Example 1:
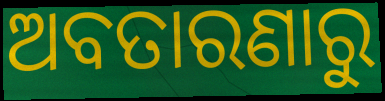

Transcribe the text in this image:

ଅବତାରଣାରୁ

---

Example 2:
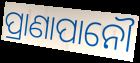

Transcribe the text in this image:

ପ୍ରାଣାପାନୌ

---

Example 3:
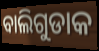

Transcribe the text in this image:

ବାଲିଗୁଡାକ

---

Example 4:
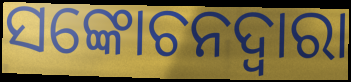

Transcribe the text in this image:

ସଙ୍କୋଚନଦ୍ୱାରା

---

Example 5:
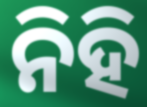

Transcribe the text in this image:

ନିହି